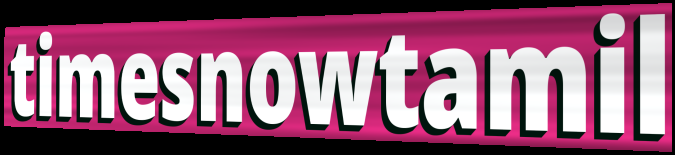
timesnowtamil